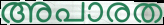
അപാരത